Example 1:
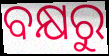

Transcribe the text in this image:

ବକ୍ଷରୁ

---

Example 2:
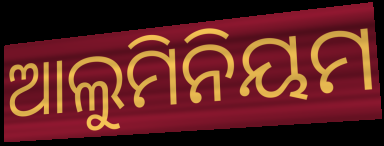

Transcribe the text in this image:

ଆଲୁମିନିୟମ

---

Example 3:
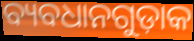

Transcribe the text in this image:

ବ୍ୟବଧାନଗୁଡ଼ାକ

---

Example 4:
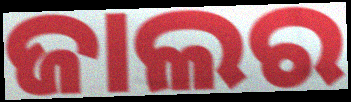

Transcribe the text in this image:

ଜାଲର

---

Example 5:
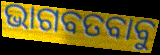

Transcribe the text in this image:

ଭାଗବତବାବୁ